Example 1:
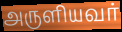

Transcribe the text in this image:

அருளியவர்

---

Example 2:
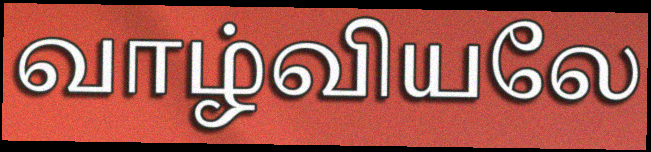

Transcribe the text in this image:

வாழ்வியலே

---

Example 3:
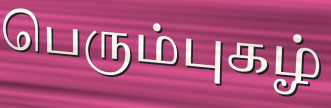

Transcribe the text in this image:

பெரும்புகழ்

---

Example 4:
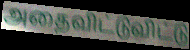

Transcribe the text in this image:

அதைவிட்டுவிட்டு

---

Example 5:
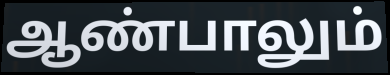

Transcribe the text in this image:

ஆண்பாலும்